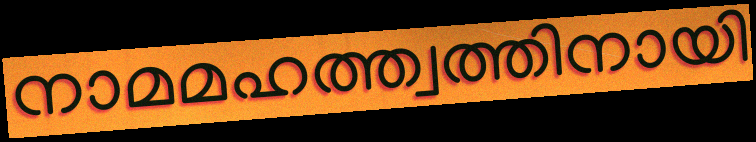
നാമമഹത്ത്വത്തിനായി